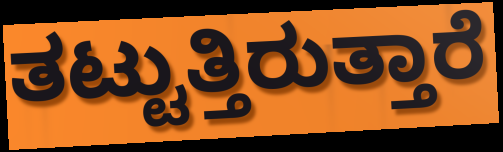
ತಟ್ಟುತ್ತಿರುತ್ತಾರೆ